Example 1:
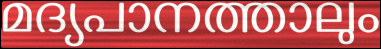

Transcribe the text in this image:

മദ്യപാനത്താലും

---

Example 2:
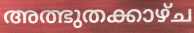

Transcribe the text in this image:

അത്ഭുതക്കാഴ്ച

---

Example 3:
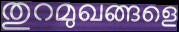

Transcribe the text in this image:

തുറമുഖങ്ങളെ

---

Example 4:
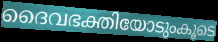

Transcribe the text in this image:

ദൈവഭക്തിയോടുംകൂടെ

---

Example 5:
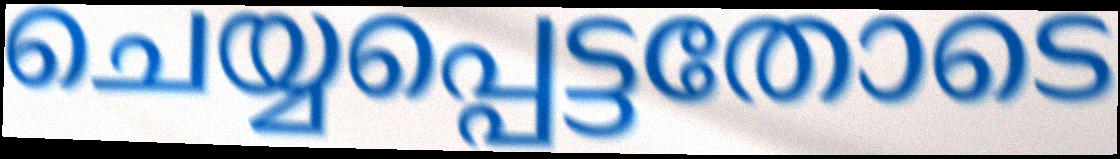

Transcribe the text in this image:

ചെയ്യപ്പെട്ടതോടെ